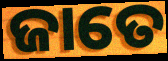
ଜାତେ